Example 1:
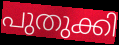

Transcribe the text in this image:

പുതുക്കി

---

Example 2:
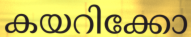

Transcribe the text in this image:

കയറിക്കോ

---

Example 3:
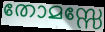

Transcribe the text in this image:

തോമസ്സേ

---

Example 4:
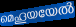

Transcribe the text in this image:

മെഹൂയയേൽ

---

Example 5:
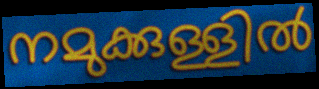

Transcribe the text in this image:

നമുക്കുള്ളിൽ